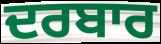
ਦਰਬਾਰ